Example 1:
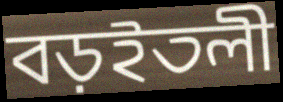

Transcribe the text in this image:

বড়ইতলী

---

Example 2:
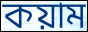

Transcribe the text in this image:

কয়াম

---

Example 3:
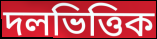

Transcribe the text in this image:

দলভিত্তিক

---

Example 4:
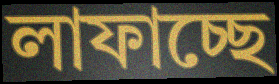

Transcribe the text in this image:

লাফাচ্ছে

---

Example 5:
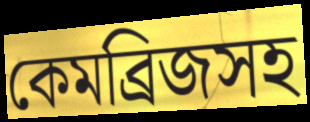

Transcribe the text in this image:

কেমব্রিজসহ